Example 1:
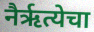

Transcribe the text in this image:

नैर्ऋत्येचा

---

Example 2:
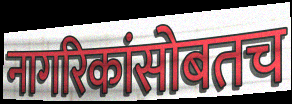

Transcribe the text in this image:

नागरिकांसोबतच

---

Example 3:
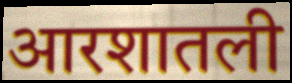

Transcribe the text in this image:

आरशातली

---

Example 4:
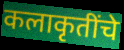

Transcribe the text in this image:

कलाकृतींचे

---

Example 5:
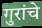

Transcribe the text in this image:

गुरांचे